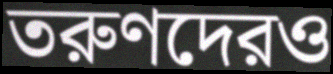
তরুণদেরও